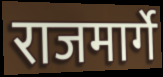
राजमार्गे